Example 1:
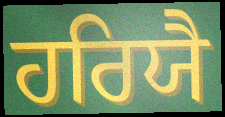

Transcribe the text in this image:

ਹਰਿਯੈ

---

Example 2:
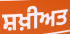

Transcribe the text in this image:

ਸ਼ਖ਼ੀਅਤ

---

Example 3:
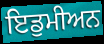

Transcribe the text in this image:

ਇਡੁਮੀਅਨ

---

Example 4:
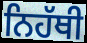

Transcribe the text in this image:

ਨਿਹੱਥੀ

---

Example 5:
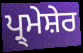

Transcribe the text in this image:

ਪ੍ਰ੍ਮੇਸ਼ੇਰ